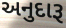
અનુદારૂ